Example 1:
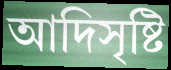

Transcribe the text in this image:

আদিসৃষ্টি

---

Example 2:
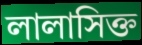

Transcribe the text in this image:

লালাসিক্ত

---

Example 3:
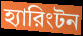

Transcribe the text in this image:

হ্যারিংটন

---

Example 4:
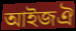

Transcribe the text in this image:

আইজঐ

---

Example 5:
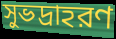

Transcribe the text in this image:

সুভদ্রাহরণ